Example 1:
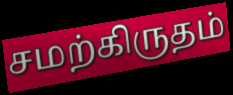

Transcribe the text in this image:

சமற்கிருதம்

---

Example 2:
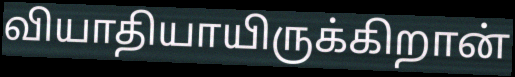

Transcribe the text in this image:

வியாதியாயிருக்கிறான்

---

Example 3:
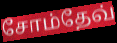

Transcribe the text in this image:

சோம்தேவ்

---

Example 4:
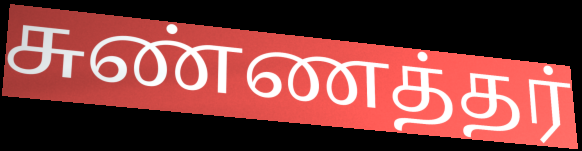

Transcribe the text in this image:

சுண்ணத்தர்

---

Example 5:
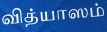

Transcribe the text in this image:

வித்யாஸம்